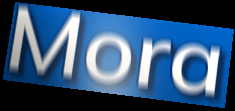
Mora